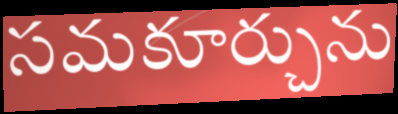
సమకూర్చును